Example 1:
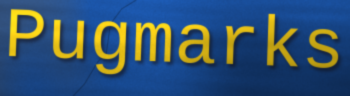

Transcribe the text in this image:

Pugmarks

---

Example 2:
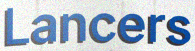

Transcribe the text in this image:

Lancers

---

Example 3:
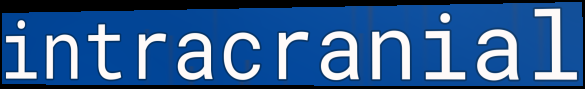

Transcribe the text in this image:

intracranial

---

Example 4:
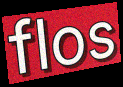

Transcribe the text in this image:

flos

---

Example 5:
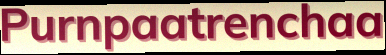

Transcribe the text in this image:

Purnpaatrenchaa